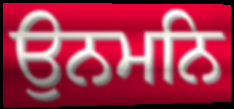
ਉਨਮਨਿ